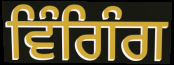
ਵਿੰਗਿੰਗ